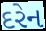
દરેન